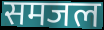
समजल